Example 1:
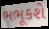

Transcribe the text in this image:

ભભૂકશે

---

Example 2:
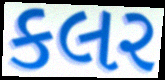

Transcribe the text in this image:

કલર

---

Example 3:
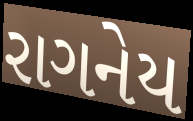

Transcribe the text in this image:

રાગનેય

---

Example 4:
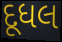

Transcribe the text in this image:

દૂધલ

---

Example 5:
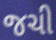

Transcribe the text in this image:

જચી